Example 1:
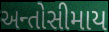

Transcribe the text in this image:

અન્તોસીમાય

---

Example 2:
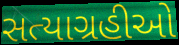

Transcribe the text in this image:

સત્યાગ્રહીઓ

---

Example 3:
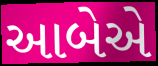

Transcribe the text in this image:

આબેએ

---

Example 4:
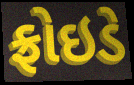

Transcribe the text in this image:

ફ્રોઇડે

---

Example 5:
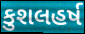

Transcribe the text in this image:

કુશલહર્ષ